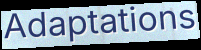
Adaptations